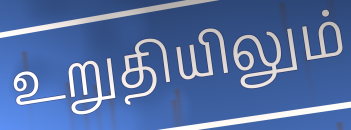
உறுதியிலும்